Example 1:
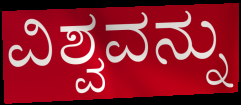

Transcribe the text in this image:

ವಿಶ್ವವನ್ನು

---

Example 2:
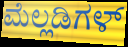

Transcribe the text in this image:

ಮೆಲ್ಲಡಿಗಳ್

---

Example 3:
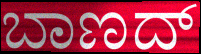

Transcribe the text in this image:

ಬಾಣದ್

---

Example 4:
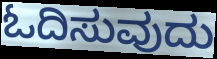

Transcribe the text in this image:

ಓದಿಸುವುದು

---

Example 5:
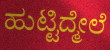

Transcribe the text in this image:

ಹುಟ್ಟಿದ್ಮೇಲೆ